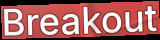
Breakout